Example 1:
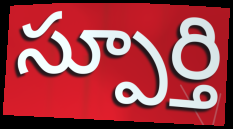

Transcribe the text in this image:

స్పూర్తి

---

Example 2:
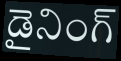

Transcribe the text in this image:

డైనింగ్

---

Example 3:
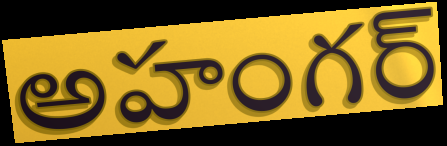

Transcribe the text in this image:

అహంగర్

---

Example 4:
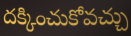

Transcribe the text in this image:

దక్కించుకోవచ్చు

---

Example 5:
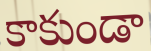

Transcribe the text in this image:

కాకుండా